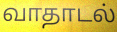
வாதாடல்